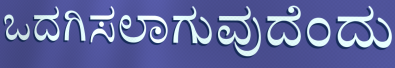
ಒದಗಿಸಲಾಗುವುದೆಂದು